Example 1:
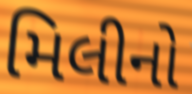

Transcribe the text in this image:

મિલીનો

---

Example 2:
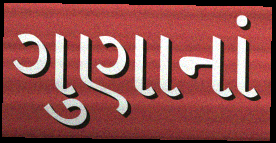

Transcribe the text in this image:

ગુણાનાં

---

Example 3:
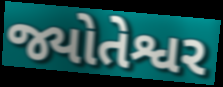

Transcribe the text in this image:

જ્યોતેશ્વર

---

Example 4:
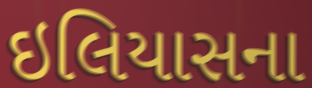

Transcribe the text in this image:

ઇલિયાસના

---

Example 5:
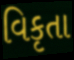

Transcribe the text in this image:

વિકૃતા